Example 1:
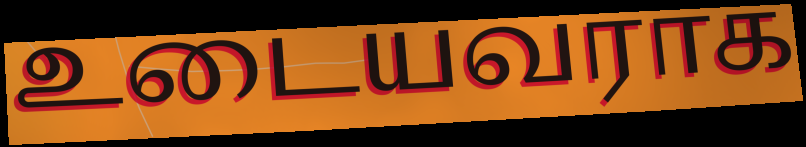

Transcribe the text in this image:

உடையவராக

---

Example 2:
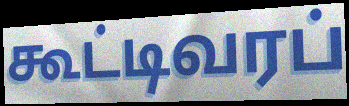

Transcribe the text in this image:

கூட்டிவரப்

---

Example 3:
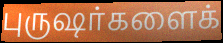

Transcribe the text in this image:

புருஷர்களைக்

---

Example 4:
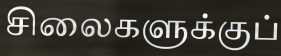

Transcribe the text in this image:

சிலைகளுக்குப்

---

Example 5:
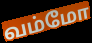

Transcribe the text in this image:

வம்மோ